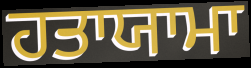
ਹਤਾਯਾਮਾ